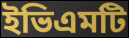
ইভিএমটি